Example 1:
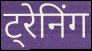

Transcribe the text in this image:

ट्रेनिंग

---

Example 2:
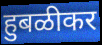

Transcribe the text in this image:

हुबळीकर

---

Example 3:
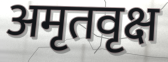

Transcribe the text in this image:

अमृतवृक्ष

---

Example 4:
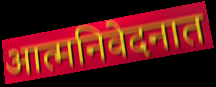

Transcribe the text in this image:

आत्मनिवेदनात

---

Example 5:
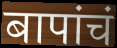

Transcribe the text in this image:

बापांचं